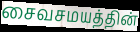
சைவசமயத்தின்